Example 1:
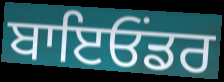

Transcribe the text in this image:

ਬਾਇਓਂਡਰ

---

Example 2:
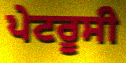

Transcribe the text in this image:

ਪੇਟਰੂਸੀ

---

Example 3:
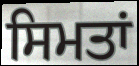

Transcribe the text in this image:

ਸਿਮਤਾਂ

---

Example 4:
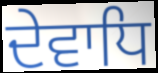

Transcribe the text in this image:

ਦੇਵਾਧਿ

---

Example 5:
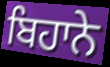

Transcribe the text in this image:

ਬਿਹਾਨੇ